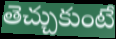
తెచ్చుకుంటే